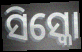
ସିସ୍କୋ